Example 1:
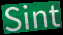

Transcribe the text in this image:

Sint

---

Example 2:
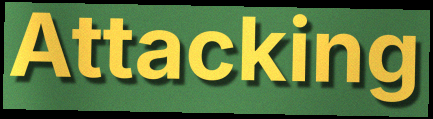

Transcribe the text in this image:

Attacking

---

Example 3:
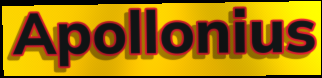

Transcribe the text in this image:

Apollonius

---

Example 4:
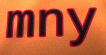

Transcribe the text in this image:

mny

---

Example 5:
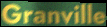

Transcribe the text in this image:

Granville